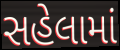
સહેલામાં